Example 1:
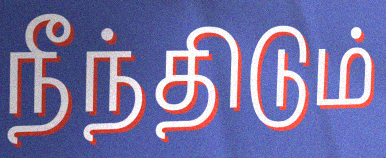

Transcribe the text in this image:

நீந்திடும்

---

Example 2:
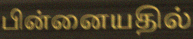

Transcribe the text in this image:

பின்னையதில்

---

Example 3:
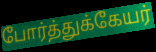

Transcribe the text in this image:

போர்த்துக்கேயர்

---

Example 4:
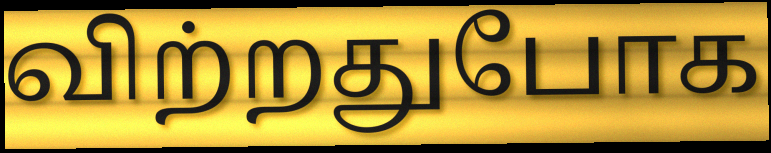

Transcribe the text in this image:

விற்றதுபோக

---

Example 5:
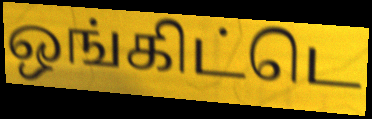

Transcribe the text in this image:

ஒங்கிட்டெ